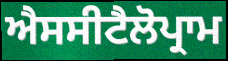
ਐਸਸੀਟੈਲੋਪ੍ਰਾਮ